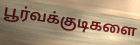
பூர்வக்குடிகளை